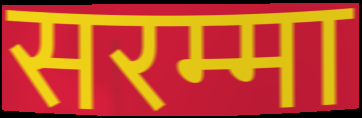
सरम्मा